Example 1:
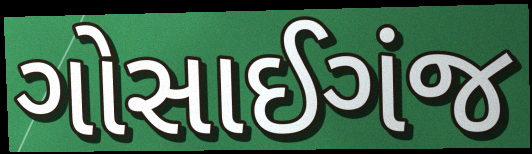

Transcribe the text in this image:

ગોસાઈગંજ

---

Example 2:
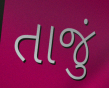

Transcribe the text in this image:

તાજું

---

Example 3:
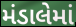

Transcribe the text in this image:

મંડાલેમાં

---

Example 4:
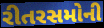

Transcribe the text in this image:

રીતરસમોની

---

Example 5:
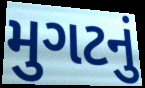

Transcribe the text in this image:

મુગટનું